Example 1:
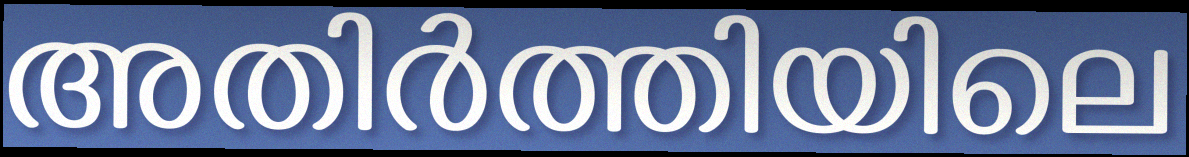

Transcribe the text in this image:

അതിർത്തിയിലെ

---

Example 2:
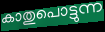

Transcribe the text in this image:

കാതുപൊട്ടുന്ന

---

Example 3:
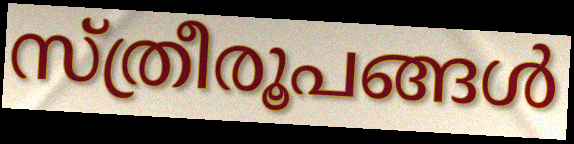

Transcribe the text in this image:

സ്ത്രീരൂപങ്ങൾ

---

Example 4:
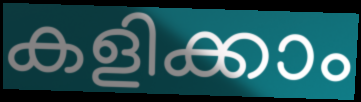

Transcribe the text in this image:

കളിക്കാം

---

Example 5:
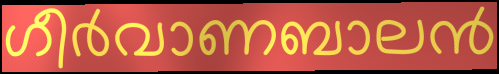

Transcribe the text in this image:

ഗീർവാണബാലൻ